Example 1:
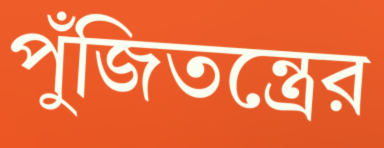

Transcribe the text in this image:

পুঁজিতন্ত্রের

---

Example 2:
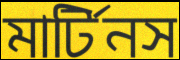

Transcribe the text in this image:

মার্টিনস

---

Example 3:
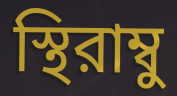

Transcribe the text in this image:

স্থিরাম্বু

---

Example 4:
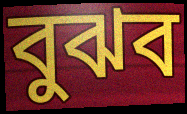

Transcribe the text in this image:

বুঝব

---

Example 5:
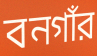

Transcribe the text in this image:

বনগাঁর